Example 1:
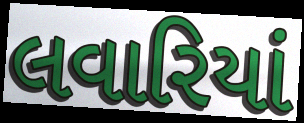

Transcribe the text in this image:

લવારિયાં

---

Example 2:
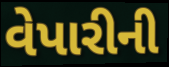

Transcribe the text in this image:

વેપારીની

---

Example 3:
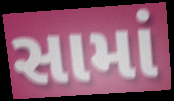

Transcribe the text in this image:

સામાં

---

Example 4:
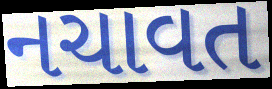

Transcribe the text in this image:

નચાવત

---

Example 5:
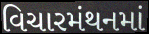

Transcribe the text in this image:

વિચારમંથનમાં